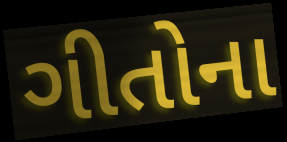
ગીતોના